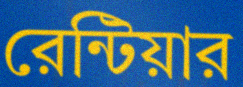
রেন্টিয়ার